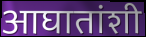
आघातांशी